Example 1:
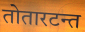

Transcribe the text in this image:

तोतारटन्त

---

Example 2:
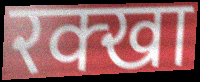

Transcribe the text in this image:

रक्‍खा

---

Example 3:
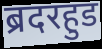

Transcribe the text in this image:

ब्रदरहुड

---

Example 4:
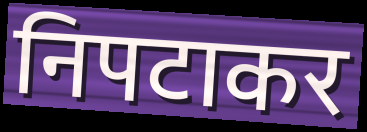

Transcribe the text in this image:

निपटाकर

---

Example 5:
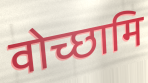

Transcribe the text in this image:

वोच्छामि